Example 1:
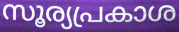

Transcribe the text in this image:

സൂര്യപ്രകാശ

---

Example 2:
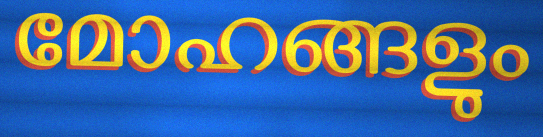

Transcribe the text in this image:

മോഹങ്ങളും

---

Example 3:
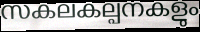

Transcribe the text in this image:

സകലകല്പനകളും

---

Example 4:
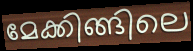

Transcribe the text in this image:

മേക്കിങ്ങിലെ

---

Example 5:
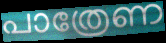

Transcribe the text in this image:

പാത്രേണ